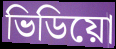
ভিডিয়ো